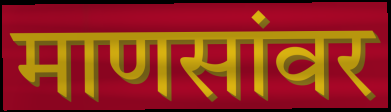
माणसांवर